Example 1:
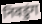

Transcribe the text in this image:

निवडुंग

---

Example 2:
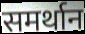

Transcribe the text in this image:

समर्थान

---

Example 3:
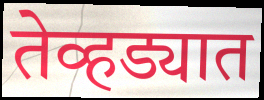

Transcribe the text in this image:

तेव्हड्यात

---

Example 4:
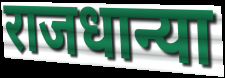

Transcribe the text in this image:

राजधान्या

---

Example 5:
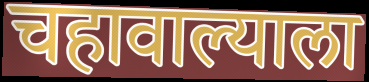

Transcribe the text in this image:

चहावाल्याला